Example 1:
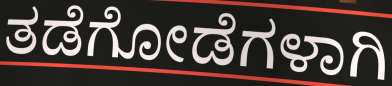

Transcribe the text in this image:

ತಡೆಗೋಡೆಗಳಾಗಿ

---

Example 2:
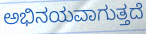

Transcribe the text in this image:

ಅಭಿನಯವಾಗುತ್ತದೆ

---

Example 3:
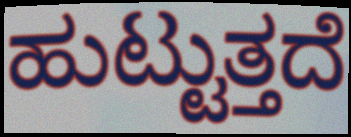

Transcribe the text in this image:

ಹುಟ್ಟುತ್ತದೆ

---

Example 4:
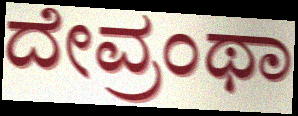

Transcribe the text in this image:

ದೇವ್ರಂಥಾ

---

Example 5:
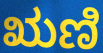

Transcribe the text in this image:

ಋಣಿ